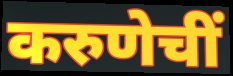
करुणेचीं